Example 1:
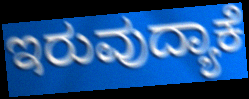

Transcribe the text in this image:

ಇರುವುದ್ಯಾಕೆ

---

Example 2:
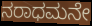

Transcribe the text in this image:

ನರಾಧಮನೇ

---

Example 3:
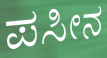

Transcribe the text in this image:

ಪಸೀನ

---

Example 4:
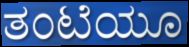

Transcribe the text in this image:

ತಂಟೆಯೂ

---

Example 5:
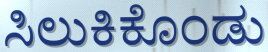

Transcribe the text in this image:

ಸಿಲುಕಿಕೊಂಡು